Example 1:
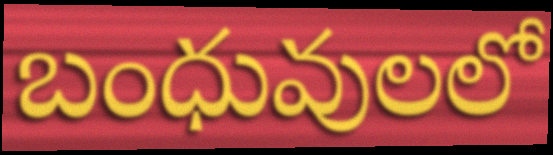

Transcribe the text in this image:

బంధువులలో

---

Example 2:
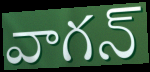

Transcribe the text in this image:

వాగన్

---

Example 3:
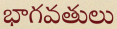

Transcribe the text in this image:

భాగవతులు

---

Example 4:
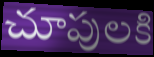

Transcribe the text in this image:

చూపులకి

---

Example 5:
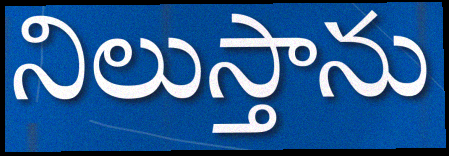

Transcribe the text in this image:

నిలుస్తాను